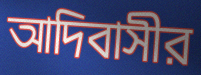
আদিবাসীর